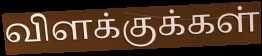
விளக்குக்கள்